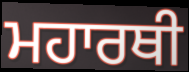
ਮਹਾਰਥੀ